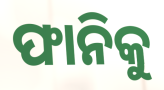
ଫାନିକୁ